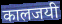
कालजयी